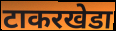
टाकरखेडा